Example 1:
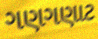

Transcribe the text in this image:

ગણગણાટ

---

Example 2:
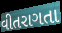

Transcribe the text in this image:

વીતરાગતા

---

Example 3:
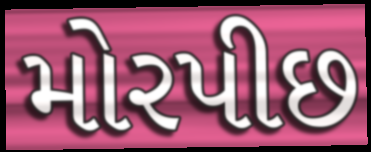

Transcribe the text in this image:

મોરપીછ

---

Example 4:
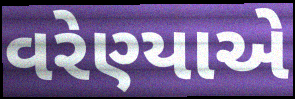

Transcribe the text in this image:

વરેણ્યાએ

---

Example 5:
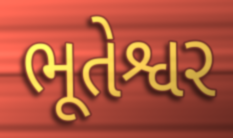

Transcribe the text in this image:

ભૂતેશ્વર